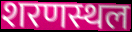
शरणस्थल